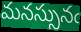
మనస్సునఁ